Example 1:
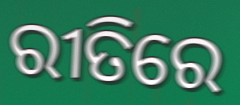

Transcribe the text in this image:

ରୀତିରେ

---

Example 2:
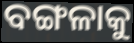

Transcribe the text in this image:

ବଙ୍ଗଳାକୁ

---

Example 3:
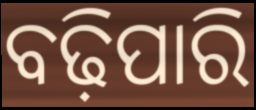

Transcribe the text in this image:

ବଢ଼ିପାରି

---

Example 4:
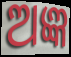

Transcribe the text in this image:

ଅଜ୍ଞ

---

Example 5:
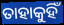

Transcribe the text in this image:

ତାହାକୁହିଁ